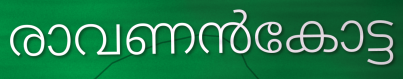
രാവണൻകോട്ട